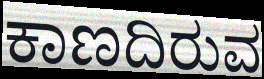
ಕಾಣದಿರುವ